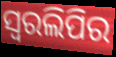
ସ୍ୱରଲିପିର